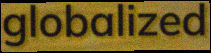
globalized